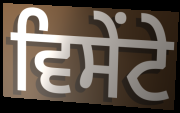
ਵਿਸੇਂਟੇ